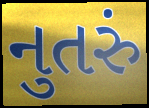
નુતરું